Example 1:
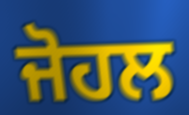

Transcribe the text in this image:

ਜੋਹਲ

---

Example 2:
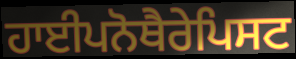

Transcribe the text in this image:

ਹਾਈਪਨੋਥੈਰੇਪਿਸਟ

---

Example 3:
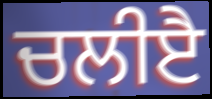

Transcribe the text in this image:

ਚਲੀੲੈ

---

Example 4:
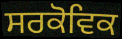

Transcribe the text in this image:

ਸਰਕੋਵਿਕ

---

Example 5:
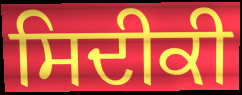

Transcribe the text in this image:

ਸਿਦੀਕੀ